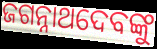
ଜଗନ୍ନାଥଦେବଙ୍କୁ